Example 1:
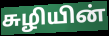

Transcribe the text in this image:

சுழியின்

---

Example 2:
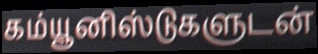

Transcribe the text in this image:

கம்யூனிஸ்டுகளுடன்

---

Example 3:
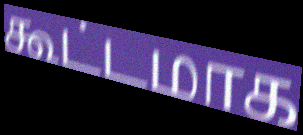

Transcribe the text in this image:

கூட்டமாக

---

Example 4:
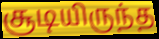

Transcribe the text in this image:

சூடியிருந்த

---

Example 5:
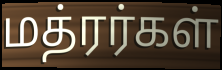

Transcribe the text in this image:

மத்ரர்கள்